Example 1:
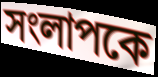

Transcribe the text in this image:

সংলাপকে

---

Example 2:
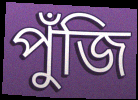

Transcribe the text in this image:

পুঁজি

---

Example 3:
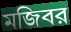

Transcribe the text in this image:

মজিবর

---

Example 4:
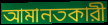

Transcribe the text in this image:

আমানতকারী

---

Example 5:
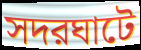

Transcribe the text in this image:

সদরঘাটে